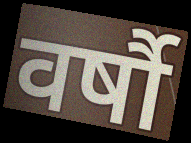
वर्षौ